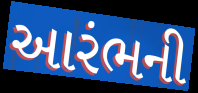
આરંભની